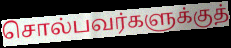
சொல்பவர்களுக்குத்